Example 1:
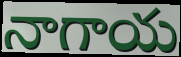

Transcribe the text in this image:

నాగాయ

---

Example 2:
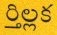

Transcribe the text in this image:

ర్తిల్లక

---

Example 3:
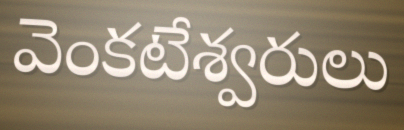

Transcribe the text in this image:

వెంకటేశ్వరులు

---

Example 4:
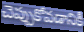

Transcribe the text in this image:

చెప్పుకోవడానికీ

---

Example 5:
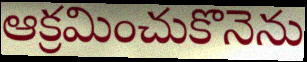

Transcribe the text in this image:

ఆక్రమించుకొనెను